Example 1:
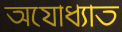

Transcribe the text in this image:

অযোধ্যাত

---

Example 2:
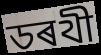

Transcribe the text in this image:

ডৰথী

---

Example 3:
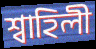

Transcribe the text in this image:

শ্বাহিলী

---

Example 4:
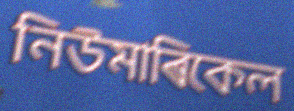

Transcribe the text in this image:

নিউমাৰিকেল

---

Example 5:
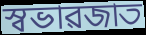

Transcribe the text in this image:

স্বভাৱজাত